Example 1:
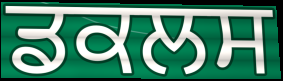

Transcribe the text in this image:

ਡਕਲਸ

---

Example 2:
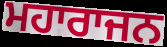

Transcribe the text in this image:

ਮਹਾਰਾਜਨ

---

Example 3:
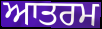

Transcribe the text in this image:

ਆਤਰਮ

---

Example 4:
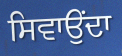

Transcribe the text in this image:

ਸਿਵਾਉਂਦਾ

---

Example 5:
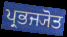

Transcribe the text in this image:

ਪ੍ਰਭਜ੍ਯੋਤ